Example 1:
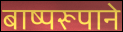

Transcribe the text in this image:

बाष्परूपाने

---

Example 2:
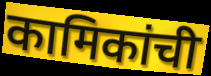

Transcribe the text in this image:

कामिकांची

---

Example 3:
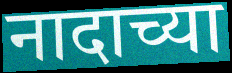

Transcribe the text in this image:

नादाच्या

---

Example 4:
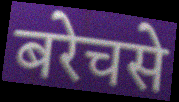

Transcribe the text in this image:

बरेचसे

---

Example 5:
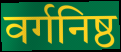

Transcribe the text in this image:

वर्गनिष्ठ